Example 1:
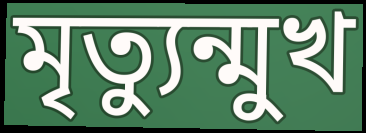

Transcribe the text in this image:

মৃত্যুন্মুখ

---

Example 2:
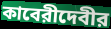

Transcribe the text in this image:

কাবেরীদেবীর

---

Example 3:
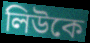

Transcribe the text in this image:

লিউকে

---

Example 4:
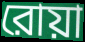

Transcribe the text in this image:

রোয়া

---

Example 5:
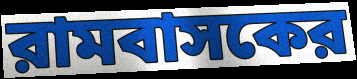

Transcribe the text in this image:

রামবাসকের